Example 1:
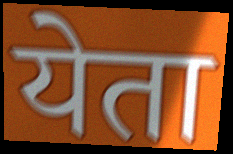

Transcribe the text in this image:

येता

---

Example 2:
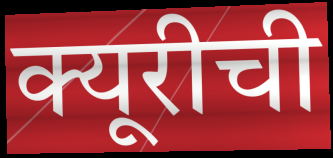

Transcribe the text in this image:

क्यूरीची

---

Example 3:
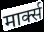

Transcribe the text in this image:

मार्क्‍स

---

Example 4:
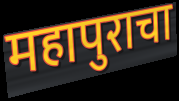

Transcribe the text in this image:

महापुराचा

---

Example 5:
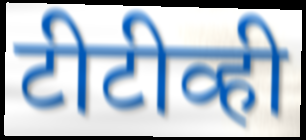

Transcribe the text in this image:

टीटीव्ही